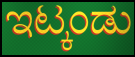
ಇಟ್ಕಂಡು